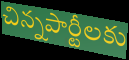
చిన్నపార్టీలకు